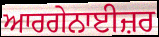
ਆਰਗੇਨਾਈਜ਼ਰ